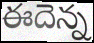
ఈదెన్న